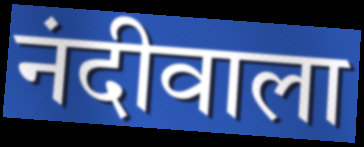
नंदीवाला